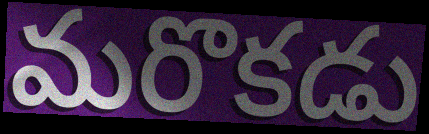
మరొకడు